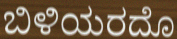
ಬಿಳಿಯರದೊ